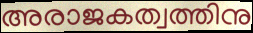
അരാജകത്വത്തിനു